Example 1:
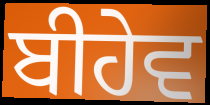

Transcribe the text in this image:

ਬੀਹੇਵ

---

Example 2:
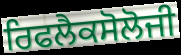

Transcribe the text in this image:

ਰਿਫਲੈਕਸੋਲੋਜੀ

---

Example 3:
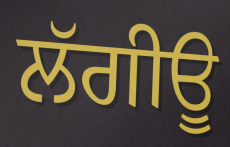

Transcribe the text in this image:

ਲੱਗੀਊ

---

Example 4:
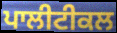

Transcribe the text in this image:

ਪਾਲੀਟੀਕਲ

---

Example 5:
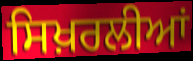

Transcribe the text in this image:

ਸਿਖ਼ਰਲੀਆਂ